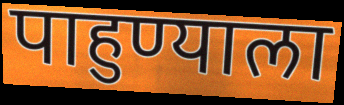
पाहुण्याला